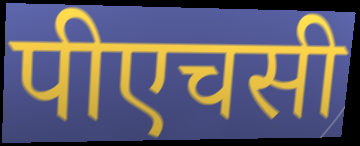
पीएचसी